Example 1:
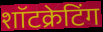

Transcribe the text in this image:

शॉटक्रेटिंग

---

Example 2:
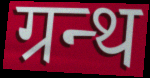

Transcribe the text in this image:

ग्रन्थ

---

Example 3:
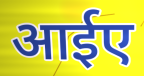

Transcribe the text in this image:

आईए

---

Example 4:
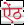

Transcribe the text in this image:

ऐंठ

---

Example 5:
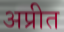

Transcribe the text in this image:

अप्रीत